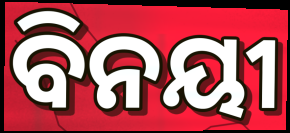
ବିନୟୀ